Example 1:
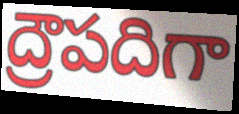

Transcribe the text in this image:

ద్రౌపదిగా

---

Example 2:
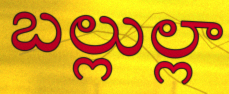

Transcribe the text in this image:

బల్లుల్లా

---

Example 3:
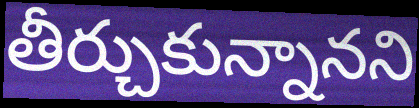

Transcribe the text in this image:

తీర్చుకున్నానని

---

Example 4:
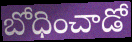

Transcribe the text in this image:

బోధించాడో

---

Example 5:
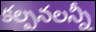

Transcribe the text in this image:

కల్పనలన్నీ